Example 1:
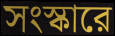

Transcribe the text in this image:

সংস্কারে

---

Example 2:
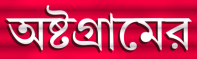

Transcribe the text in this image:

অষ্টগ্রামের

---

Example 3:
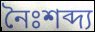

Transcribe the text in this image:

নৈঃশব্দ্য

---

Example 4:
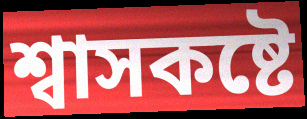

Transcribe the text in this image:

শ্বাসকষ্টে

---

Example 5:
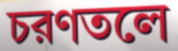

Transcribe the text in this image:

চরণতলে